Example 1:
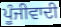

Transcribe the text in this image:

ਪੂੰਜੀਵਾਦੀ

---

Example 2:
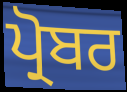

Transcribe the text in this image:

ਪ੍ਰੋਬਰ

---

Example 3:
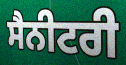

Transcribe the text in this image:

ਸੈਨੀਟਰੀ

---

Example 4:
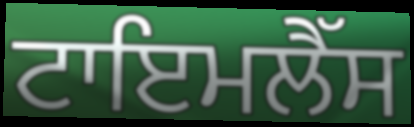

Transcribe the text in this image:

ਟਾਇਮਲੈੱਸ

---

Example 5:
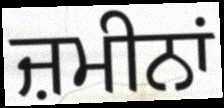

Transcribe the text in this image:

ਜ਼ਮੀਨਾਂ